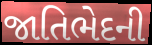
જાતિભેદની